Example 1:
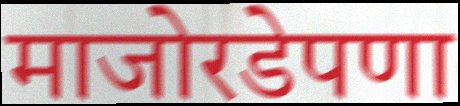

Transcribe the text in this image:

माजोरडेपणा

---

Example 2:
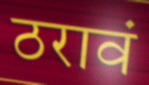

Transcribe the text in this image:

ठरावं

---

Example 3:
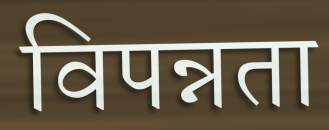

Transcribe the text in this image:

विपन्नता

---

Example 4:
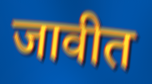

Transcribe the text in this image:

जावीत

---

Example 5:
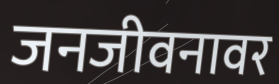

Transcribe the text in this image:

जनजीवनावर